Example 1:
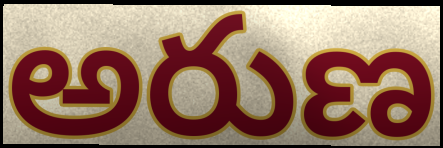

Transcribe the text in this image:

అరుణ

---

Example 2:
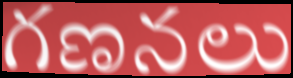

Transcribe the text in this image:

గణనలు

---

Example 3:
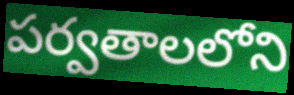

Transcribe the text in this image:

పర్వతాలలోని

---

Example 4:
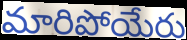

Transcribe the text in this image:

మారిపోయేరు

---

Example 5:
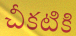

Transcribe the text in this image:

చీకటికి